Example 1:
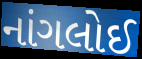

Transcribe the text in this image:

નાંગલોઈ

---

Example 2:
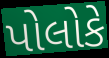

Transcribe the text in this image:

પોલોકે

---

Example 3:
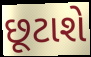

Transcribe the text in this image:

છૂટાશે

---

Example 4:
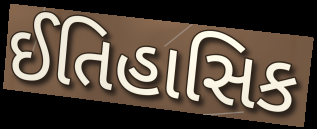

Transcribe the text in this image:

ઈતિહાસિક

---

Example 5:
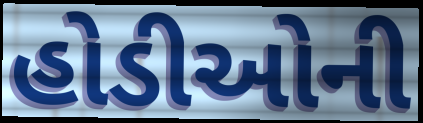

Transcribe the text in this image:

હોડીઓની